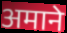
अमाने